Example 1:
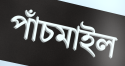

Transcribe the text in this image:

পাঁচমাইল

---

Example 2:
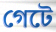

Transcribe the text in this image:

গেটে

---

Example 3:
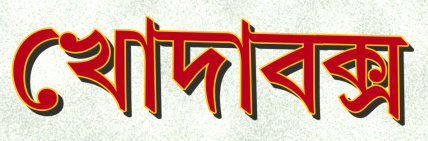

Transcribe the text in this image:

খোদাবক্স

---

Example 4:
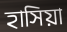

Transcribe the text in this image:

হাসিয়া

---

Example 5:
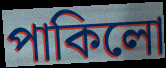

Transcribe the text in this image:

পাকিলো